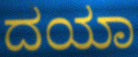
ದಯಾ